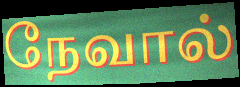
நேவால்